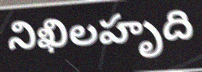
నిఖిలహృది